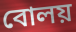
বোলয়